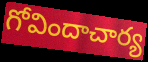
గోవిందాచార్య